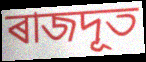
ৰাজদূত